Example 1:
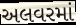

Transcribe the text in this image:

અલવરમાં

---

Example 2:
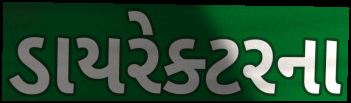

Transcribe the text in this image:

ડાયરેક્ટરના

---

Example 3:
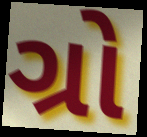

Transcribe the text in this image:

ગ્રો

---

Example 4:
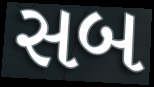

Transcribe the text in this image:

સબ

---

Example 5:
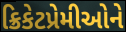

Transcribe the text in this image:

ક્રિકેટપ્રેમીઓને